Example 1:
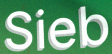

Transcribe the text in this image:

Sieb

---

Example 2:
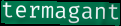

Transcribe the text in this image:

termagant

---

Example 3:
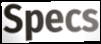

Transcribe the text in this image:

Specs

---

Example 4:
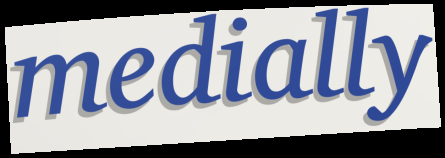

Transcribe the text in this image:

medially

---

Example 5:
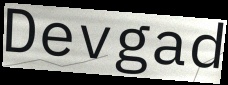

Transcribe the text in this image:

Devgad